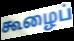
கூழைப்